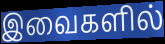
இவைகளில்